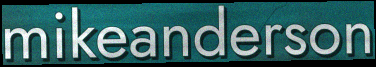
mikeanderson